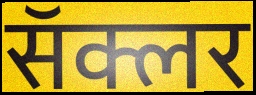
सॅक्लर